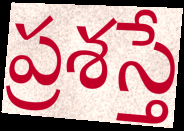
ప్రశస్తే